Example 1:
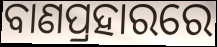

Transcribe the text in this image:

ବାଣପ୍ରହାରରେ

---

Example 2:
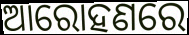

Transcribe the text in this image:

ଆରୋହଣରେ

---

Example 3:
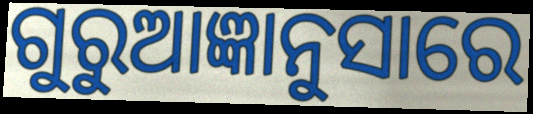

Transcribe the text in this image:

ଗୁରୁଆଜ୍ଞାନୁସାରେ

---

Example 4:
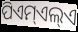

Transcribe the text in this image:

ପିଏମ୍ଏଲ୍ଏ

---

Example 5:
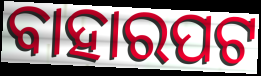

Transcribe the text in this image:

ବାହାରପଟ